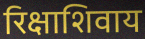
रिक्षाशिवाय